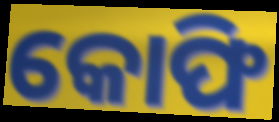
କୋଫି